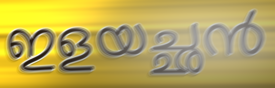
ഇളയച്ഛൻ